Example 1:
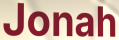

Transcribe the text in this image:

Jonah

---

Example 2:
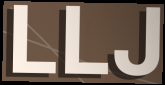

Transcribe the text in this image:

LLJ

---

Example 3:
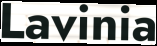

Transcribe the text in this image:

Lavinia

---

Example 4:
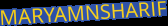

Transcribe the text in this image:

MARYAMNSHARIF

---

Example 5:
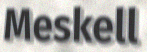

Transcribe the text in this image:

Meskell